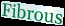
Fibrous